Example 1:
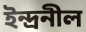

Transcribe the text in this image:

ইন্দ্ৰনীল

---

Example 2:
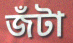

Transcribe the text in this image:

জঁটা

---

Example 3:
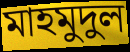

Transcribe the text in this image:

মাহমুদুল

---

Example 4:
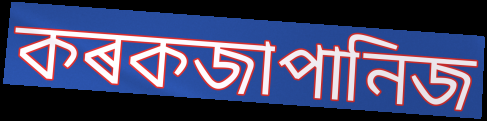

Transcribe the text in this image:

কৰকজাপানিজ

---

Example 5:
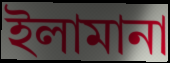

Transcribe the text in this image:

ইলামানা